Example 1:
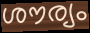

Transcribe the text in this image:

ശൗര്യം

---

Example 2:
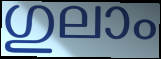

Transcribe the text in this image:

ഗുലാം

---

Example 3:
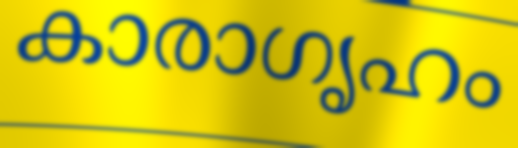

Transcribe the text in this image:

കാരാഗൃഹം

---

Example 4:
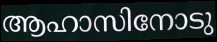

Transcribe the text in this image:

ആഹാസിനോടു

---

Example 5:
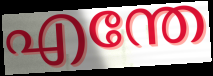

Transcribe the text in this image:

എന്തേ